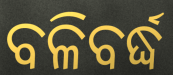
ବଳିବର୍ଦ୍ଧ